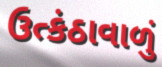
ઉત્કંઠાવાળું